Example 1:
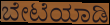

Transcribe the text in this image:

ಬೇಟೆಯಾಡಿ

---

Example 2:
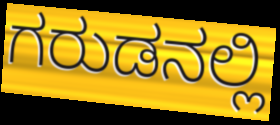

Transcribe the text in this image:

ಗರುಡನಲ್ಲಿ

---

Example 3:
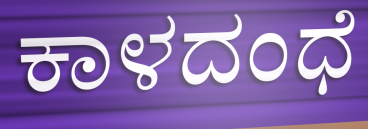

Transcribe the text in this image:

ಕಾಳದಂಧೆ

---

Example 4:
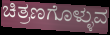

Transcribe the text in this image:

ಚಿತ್ರಣಗೊಳ್ಳುವ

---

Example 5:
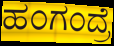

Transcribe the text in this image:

ಹಂಗಂದ್ರೆ